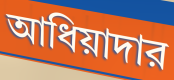
আধিয়াদার